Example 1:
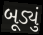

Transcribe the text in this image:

બૂડ્યું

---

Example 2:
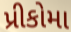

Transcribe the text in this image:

પ્રીકોમા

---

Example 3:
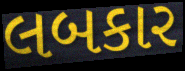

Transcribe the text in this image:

લબકાર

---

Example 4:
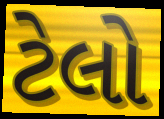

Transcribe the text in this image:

ટેલો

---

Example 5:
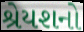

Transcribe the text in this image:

શ્રેયશનો